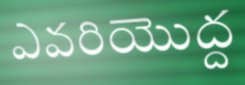
ఎవరియొద్ద